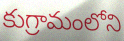
కుగ్రామంలోని